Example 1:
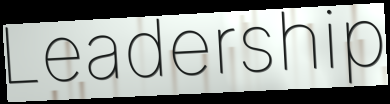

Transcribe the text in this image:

Leadership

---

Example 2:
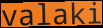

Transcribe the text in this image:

valaki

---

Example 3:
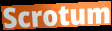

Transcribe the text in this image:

Scrotum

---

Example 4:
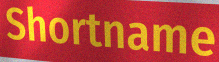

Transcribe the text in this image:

Shortname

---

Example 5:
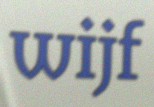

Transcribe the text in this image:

wijf